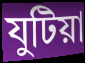
যুটিয়া